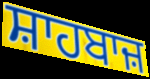
ਸ਼ਾਹਬਾਜ਼